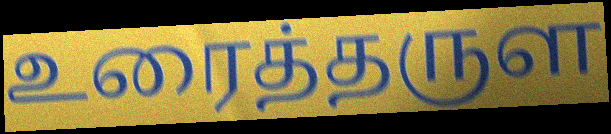
உரைத்தருள